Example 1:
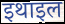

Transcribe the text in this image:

इथाइल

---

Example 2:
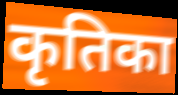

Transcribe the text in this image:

कृतिका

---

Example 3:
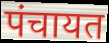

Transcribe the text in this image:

पंचायत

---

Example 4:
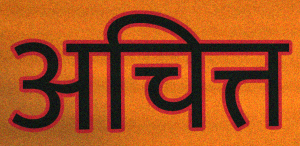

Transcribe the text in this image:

अचित्त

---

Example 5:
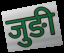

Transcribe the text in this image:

जुङी